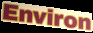
Environ